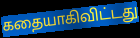
கதையாகிவிட்டது